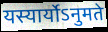
यस्यार्योऽनुमते